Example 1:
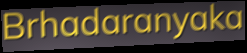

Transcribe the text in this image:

Brhadaranyaka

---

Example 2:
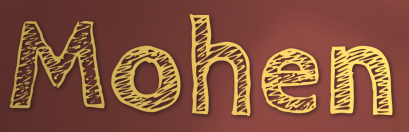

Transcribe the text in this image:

Mohen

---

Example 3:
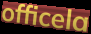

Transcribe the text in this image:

officela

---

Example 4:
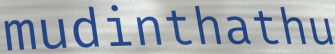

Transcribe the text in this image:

mudinthathu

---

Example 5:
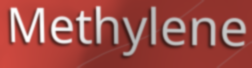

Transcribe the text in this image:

Methylene